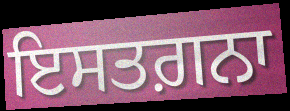
ਇਸਤਗ਼ਨਾ